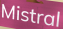
Mistral